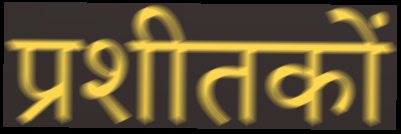
प्रशीतकों